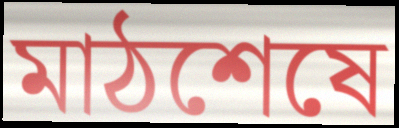
মাঠশেষে